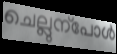
ചെല്ലുന്പോൾ